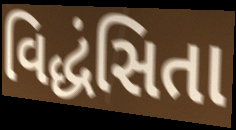
વિદ્ધંસિતા